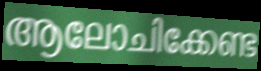
ആലോചിക്കേണ്ട